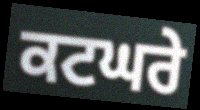
ਕਟਘਰੇ